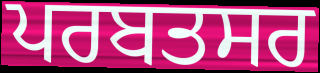
ਪਰਬਤਸਰ